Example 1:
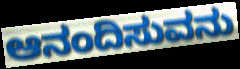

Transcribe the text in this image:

ಆನಂದಿಸುವನು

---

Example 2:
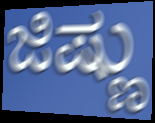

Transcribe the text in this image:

ಜಿಷ್ಣು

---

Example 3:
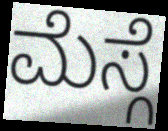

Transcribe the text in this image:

ಮೆಸ್ಗೆ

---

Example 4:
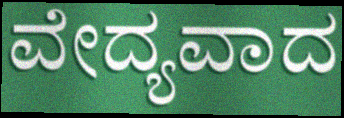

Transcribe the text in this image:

ವೇದ್ಯವಾದ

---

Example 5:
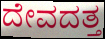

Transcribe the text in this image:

ದೇವದತ್ತ